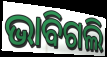
ଭାବିଗଲି